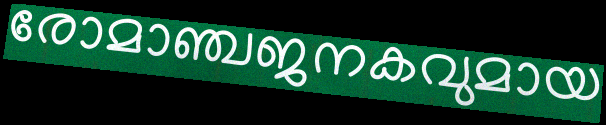
രോമാഞ്ചജനകവുമായ